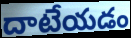
దాటేయడం